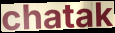
chatak